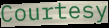
Courtesy